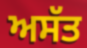
ਅਸੱਤ